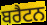
ਬਰੈਟਨ